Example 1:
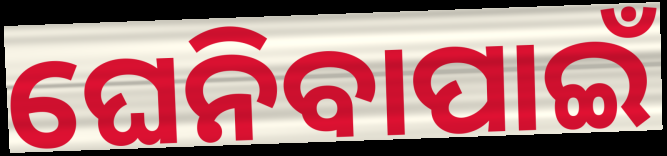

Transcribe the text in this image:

ଘେନିବାପାଇଁ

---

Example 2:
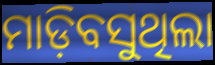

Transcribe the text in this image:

ମାଡ଼ିବସୁଥିଲା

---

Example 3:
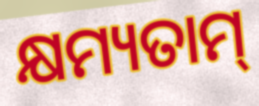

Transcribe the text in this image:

କ୍ଷମ୍ୟତାମ୍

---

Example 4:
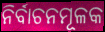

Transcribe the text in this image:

ନିର୍ବାଚନମୂଳକ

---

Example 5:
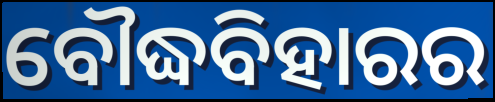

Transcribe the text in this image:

ବୌଦ୍ଧବିହାରର